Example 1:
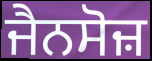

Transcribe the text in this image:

ਜੈਨਸੋਜ਼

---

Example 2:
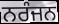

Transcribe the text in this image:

ਨਰੰਜਨ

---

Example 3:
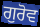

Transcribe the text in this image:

ਗੁਰੋਵ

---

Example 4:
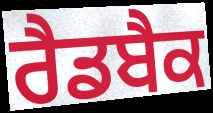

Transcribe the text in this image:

ਰੈਡਬੈਕ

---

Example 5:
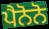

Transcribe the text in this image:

ਪੈਨੋਨੋ